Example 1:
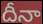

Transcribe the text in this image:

దీనా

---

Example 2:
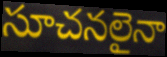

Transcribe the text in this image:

సూచనలైనా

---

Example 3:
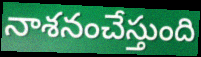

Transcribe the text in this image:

నాశనంచేస్తుంది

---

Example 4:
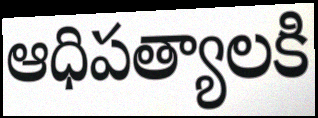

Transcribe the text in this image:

ఆధిపత్యాలకి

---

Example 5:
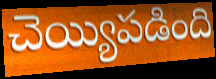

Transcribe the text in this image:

చెయ్యిపడింది